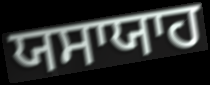
ਯਸਾਯਾਹ